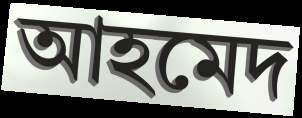
আহমেদ